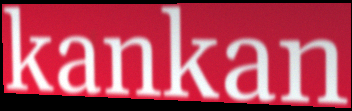
kankan